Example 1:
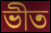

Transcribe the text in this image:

ভীত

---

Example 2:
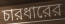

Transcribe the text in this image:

চারধারের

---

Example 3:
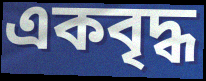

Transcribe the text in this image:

একবৃদ্ধ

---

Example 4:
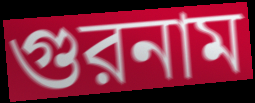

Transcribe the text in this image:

গুরনাম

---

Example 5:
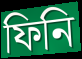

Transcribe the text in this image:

ফিনি